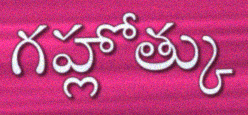
గహ్లోత్కు